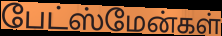
பேட்ஸ்மேன்கள்